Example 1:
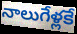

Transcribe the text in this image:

నాలుగేళ్లకే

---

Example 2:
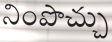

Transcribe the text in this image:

నింపొచ్చు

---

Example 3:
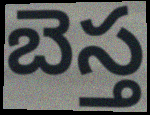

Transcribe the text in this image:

బెస్త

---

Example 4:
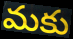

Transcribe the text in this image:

మకు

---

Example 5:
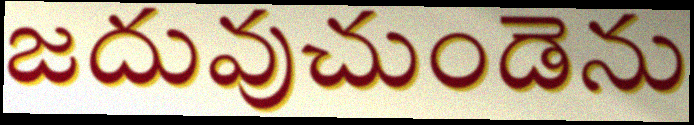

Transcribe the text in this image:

జదువుచుండెను